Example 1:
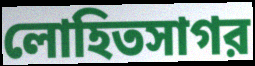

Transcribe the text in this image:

লোহিতসাগর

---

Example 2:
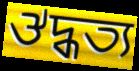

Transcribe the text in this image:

ঔদ্ধত্য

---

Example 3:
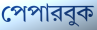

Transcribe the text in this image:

পেপারবুক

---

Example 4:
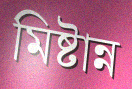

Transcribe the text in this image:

মিষ্টান্ন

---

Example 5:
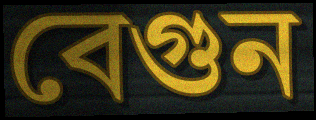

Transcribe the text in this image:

বেগুন